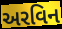
અરવિન